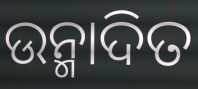
ଉନ୍ମାଦିତ